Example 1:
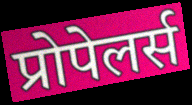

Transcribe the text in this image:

प्रोपेलर्स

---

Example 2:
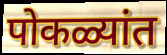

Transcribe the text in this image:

पोकळ्यांत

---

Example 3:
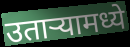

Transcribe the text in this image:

उताऱ्यामध्ये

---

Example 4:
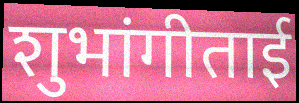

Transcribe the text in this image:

शुभांगीताई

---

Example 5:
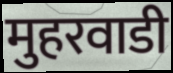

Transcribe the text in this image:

मुहरवाडी